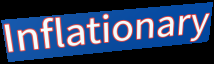
Inflationary